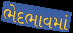
ભેદભાવમાં